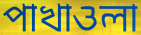
পাখাওলা